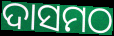
ଦାସମଠ